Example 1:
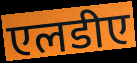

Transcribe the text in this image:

एलडीए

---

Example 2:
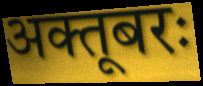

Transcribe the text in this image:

अक्तूबरः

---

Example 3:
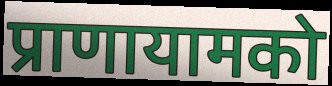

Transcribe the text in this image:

प्राणायामको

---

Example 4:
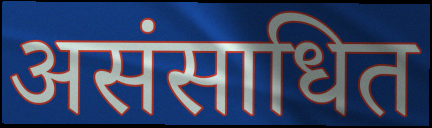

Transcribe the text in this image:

असंसाधित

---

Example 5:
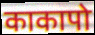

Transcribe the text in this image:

काकापो